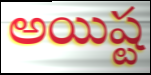
అయిష్ట